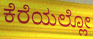
ಕೆರೆಯಲ್ಲೋ